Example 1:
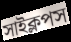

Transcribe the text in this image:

সাইক্লপস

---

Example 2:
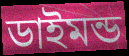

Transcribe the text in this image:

ডাইমন্ড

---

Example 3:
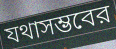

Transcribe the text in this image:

যথাসম্ভবের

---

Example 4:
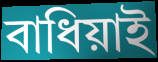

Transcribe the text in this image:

বাধিয়াই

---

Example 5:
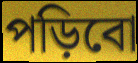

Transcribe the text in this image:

পড়িবো